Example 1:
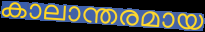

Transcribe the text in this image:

കാലാന്തരമായ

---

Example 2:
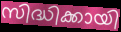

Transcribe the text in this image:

സിദ്ധിക്കായി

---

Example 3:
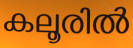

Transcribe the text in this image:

കലൂരിൽ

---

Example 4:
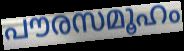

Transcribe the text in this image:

പൗരസമൂഹം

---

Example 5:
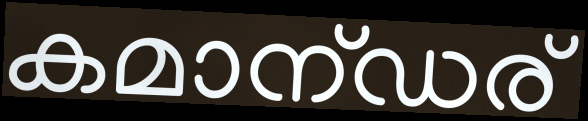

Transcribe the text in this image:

കമാന്ഡര്